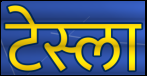
टेस्ला